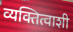
व्यक्तित्वाशी